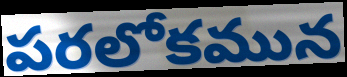
పరలోకమున